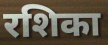
रशिका